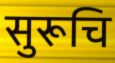
सुरूचि